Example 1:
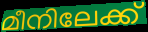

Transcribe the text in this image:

മീനിലേക്ക്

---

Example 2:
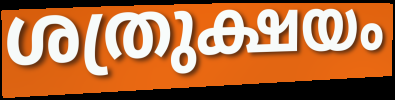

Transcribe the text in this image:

ശത്രുക്ഷയം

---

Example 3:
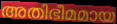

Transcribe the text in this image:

അതിഭീമമായ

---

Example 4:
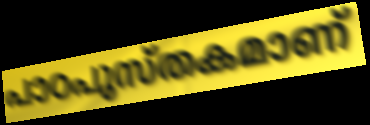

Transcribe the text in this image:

പാഠപുസ്തകമാണ്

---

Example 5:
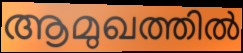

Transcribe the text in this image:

ആമുഖത്തിൽ